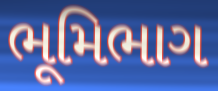
ભૂમિભાગ